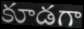
కూడగా